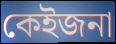
কেইজনা